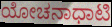
ಯೋಚನಾಧಾಟಿ